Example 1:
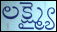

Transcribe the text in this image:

లక్ష్మ్యై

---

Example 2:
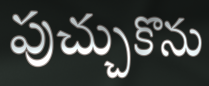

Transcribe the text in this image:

పుచ్చుకొను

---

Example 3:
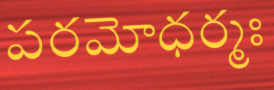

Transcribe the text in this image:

పరమోధర్మః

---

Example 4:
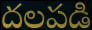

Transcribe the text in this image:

దలపడి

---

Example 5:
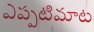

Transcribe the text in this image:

ఎప్పటిమాట